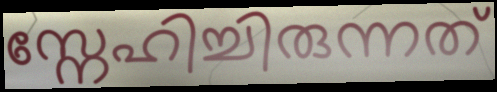
സ്നേഹിച്ചിരുന്നത്